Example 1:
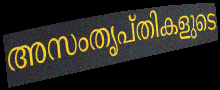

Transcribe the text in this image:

അസംതൃപ്തികളുടെ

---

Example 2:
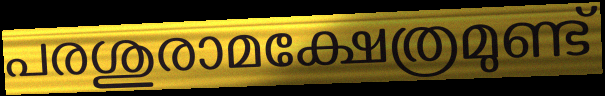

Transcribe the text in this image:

പരശുരാമക്ഷേത്രമുണ്ട്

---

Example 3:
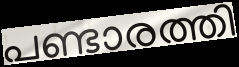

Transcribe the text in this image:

പണ്ടാരത്തി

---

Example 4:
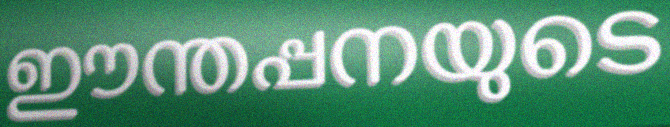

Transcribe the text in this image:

ഈന്തപ്പനയുടെ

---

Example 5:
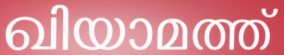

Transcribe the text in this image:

ഖിയാമത്ത്